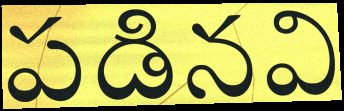
పడినవి